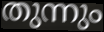
തുന്നും